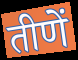
तीणें